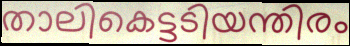
താലികെട്ടടിയന്തിരം